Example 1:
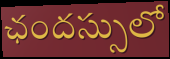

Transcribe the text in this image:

ఛందస్సులో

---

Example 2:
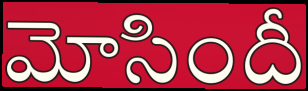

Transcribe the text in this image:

మోసిందీ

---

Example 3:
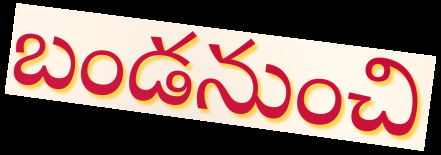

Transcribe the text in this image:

బండనుంచి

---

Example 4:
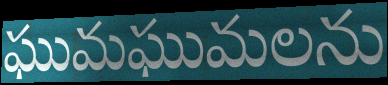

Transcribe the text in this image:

ఘుమఘుమలను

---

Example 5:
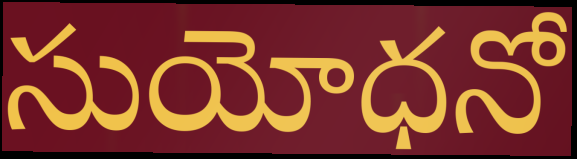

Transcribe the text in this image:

సుయోధనో